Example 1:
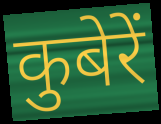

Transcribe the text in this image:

कुबेरें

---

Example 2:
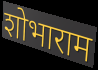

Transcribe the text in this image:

शोभाराम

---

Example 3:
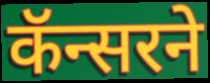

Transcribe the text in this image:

कॅन्सरने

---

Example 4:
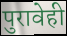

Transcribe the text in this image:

पुरावेही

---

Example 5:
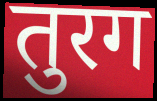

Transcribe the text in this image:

तुरग